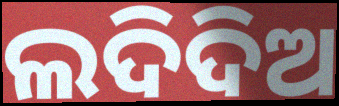
ଲଦିଦିଅ